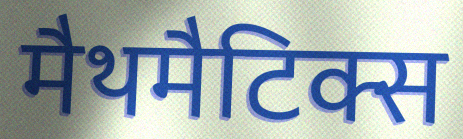
मैथमैटिक्स